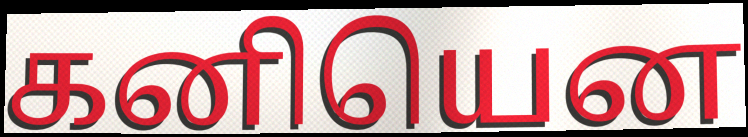
கனியென